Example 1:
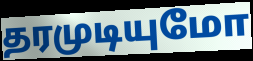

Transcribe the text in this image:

தரமுடியுமோ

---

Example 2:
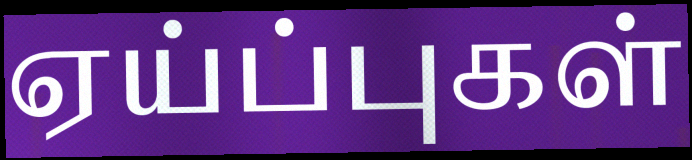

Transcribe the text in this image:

ஏய்ப்புகள்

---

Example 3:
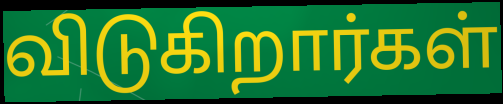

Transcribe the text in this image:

விடுகிறார்கள்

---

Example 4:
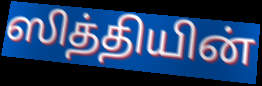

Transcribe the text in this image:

ஸித்தியின்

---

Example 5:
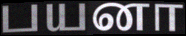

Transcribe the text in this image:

பயனா